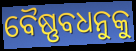
ବୈଷ୍ଣବଧନୁକୁ